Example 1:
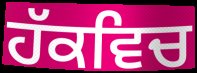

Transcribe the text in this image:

ਹੱਕਵਿਚ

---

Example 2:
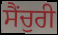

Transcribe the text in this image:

ਸੈਂਚੁਰੀ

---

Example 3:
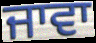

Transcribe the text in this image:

ਜਾਵਾ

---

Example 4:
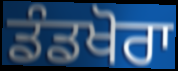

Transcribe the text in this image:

ਡੰਡਖੋਰਾ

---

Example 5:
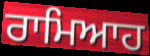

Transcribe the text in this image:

ਰਾਮਿਆਹ